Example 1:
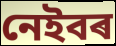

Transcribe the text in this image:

নেইবৰ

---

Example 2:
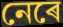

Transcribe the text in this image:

নেৰে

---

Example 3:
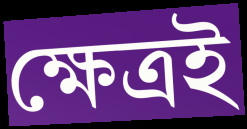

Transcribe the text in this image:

ক্ষেত্ৰই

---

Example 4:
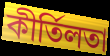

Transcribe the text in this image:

কীৰ্তিলতা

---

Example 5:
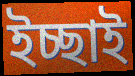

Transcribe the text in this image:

ইচ্ছাই